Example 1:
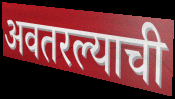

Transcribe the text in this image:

अवतरल्याची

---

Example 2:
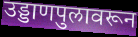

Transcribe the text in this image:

उड्डाणपुलावरून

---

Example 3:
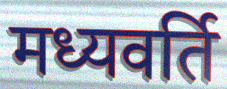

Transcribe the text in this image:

मध्यवर्ति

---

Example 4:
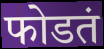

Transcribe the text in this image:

फोडतं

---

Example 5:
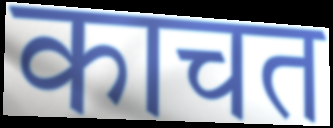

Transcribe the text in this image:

काचत